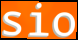
sio